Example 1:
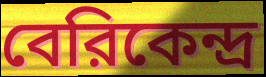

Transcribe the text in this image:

বেরিকেন্দ্র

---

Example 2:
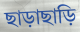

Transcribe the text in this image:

ছাড়াছাড়ি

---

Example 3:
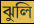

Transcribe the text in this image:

ঝুলি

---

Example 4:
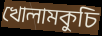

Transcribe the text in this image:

খোলামকুচি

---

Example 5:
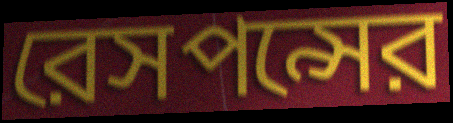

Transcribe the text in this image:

রেসপন্সের